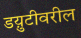
डय़ुटीवरील